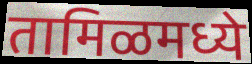
तामिळमध्ये